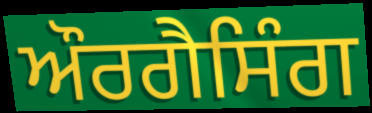
ਔਰਗੈਸਿੰਗ